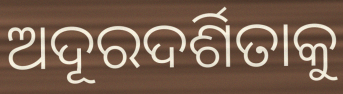
ଅଦୂରଦର୍ଶିତାକୁ